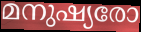
മനുഷ്യരോ